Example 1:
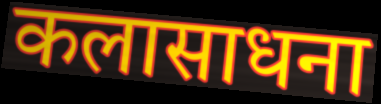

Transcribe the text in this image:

कलासाधना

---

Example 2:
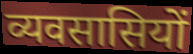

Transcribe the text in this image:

व्यवसासियों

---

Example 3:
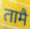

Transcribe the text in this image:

तामै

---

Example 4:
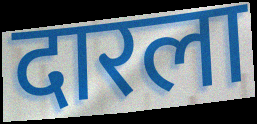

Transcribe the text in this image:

दारला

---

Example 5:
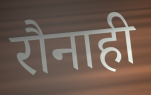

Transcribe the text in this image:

रौनाही